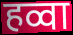
हव्वा